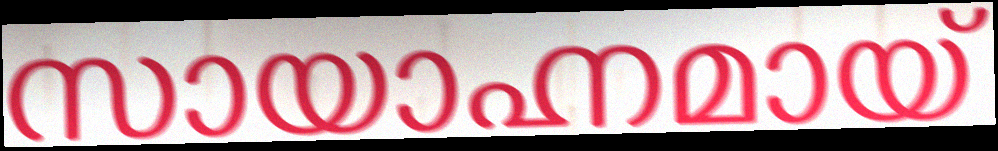
സായാഹ്നമായ്